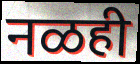
नळही